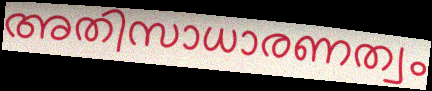
അതിസാധാരണത്വം